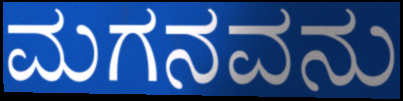
ಮಗನವನು